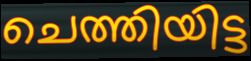
ചെത്തിയിട്ട